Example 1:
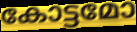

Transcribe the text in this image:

കോട്ടമോ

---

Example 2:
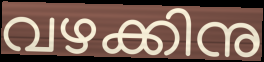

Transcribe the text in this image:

വഴക്കിനു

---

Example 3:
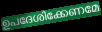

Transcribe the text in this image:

ഉപദേശിക്കേണമേ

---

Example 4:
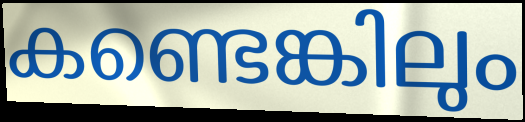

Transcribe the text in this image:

കണ്ടെങ്കിലും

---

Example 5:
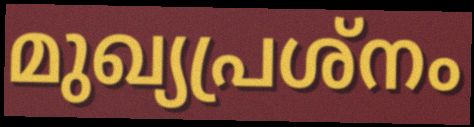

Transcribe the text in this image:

മുഖ്യപ്രശ്നം